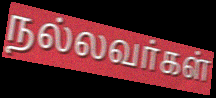
நல்லவர்கள்